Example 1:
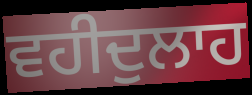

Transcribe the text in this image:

ਵਹੀਦੁਲਾਹ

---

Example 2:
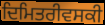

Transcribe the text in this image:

ਦਿਮਿਤਰੀਵਸਕੀ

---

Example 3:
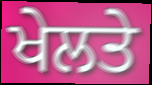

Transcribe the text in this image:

ਖੇਲਤੇ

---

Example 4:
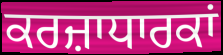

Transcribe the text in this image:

ਕਰਜ਼ਾਧਾਰਕਾਂ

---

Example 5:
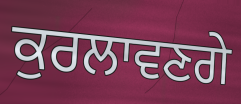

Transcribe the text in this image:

ਕੁਰਲਾਵਣਗੇ